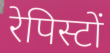
रेपिस्टों